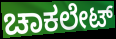
ಚಾಕಲೇಟ್